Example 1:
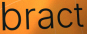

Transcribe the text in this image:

bract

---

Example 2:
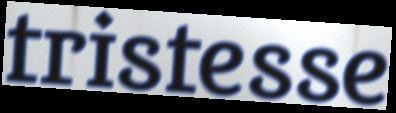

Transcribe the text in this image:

tristesse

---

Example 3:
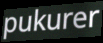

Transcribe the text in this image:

pukurer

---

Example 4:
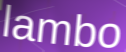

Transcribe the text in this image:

lambo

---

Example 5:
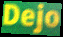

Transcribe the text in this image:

Dejo